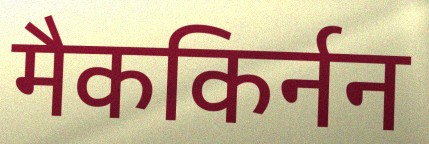
मैककिर्नन